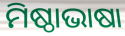
ମିଷ୍ଠାଭାଷା